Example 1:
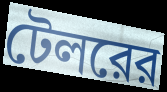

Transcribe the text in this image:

টেলরের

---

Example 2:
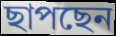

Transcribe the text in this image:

ছাপছেন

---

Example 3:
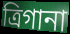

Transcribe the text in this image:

ত্রিগানা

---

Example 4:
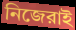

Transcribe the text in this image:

নিজেরাই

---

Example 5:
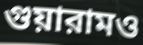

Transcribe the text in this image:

গুয়ারামও